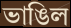
ভাঙিল